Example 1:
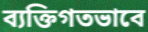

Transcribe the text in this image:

ব্যক্তিগতভাবে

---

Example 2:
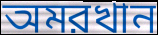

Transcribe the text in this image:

অমরখান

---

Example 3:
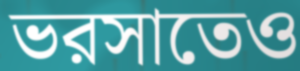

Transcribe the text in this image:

ভরসাতেও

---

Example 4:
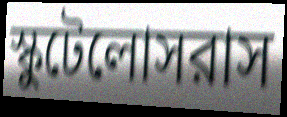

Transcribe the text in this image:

স্কুটেলোসরাস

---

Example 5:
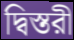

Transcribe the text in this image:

দ্বিস্তরী